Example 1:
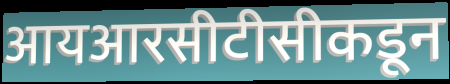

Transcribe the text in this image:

आयआरसीटीसीकडून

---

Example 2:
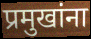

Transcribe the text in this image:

प्रमुखांना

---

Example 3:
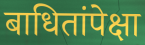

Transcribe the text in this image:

बाधितांपेक्षा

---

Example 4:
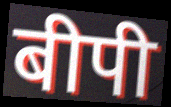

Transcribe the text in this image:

बीपी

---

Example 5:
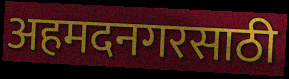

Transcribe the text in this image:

अहमदनगरसाठी